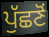
ਪੁੱਛਣੋਂ